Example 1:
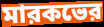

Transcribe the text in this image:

মারকভের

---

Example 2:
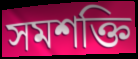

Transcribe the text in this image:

সমশক্তি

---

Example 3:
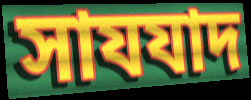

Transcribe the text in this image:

সাযযাদ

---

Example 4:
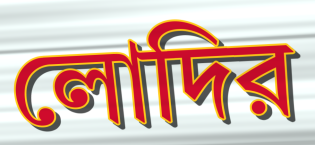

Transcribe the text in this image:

লোদির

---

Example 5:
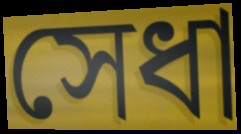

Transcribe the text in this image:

সেধা